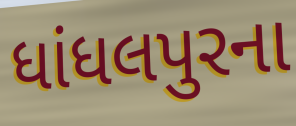
ધાંધલપુરના